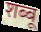
शब्बू